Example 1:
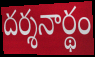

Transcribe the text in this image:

దర్శనార్థం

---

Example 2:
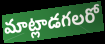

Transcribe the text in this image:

మాట్లాడగలరో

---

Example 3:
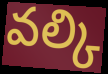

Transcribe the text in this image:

వల్కి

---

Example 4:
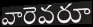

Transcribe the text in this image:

వారెవరూ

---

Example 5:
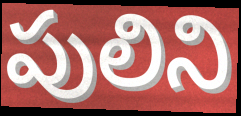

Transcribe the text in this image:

పులిని